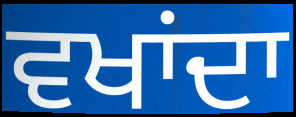
ਵਖਾਂਦਾ